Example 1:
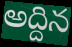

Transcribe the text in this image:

అద్దిన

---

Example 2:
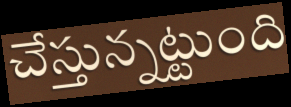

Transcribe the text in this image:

చేస్తున్నట్టుంది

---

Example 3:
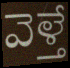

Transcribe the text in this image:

వెళ్తే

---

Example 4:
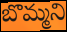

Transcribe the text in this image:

బొమ్మని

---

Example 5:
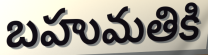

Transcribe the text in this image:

బహుమతికి